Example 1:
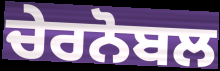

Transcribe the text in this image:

ਚੇਰਨੋਬਲ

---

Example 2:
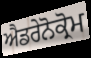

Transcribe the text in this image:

ਐਡਰੇਨੋਕ੍ਰੋਮ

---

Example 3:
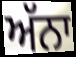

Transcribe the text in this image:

ਅੱਨਾ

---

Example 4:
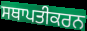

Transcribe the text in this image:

ਸਥਾਪਤੀਕਰਨ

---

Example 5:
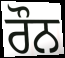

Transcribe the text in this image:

ਰੌਨ